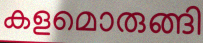
കളമൊരുങ്ങി